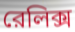
রেলিক্স